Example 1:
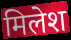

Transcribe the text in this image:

मिलेश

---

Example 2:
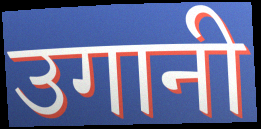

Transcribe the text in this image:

उगानी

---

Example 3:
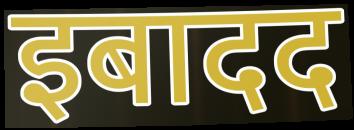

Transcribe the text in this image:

इबादद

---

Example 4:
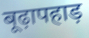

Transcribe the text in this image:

बूढ़ापहाड़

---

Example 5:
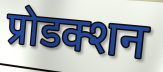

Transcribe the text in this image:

प्रोडक्शन